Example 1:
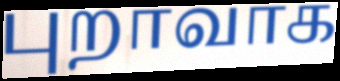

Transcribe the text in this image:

புறாவாக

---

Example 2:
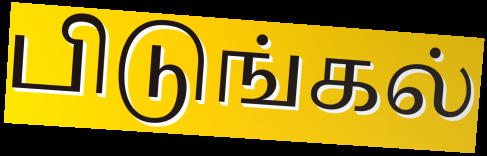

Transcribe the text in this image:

பிடுங்கல்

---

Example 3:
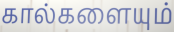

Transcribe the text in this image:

கால்களையும்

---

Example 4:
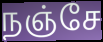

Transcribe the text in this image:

நஞ்சே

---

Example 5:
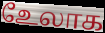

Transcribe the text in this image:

உேலாக